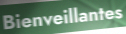
Bienveillantes